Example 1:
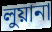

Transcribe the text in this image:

লুয়ানা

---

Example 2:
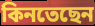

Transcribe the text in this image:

কিনতেছেন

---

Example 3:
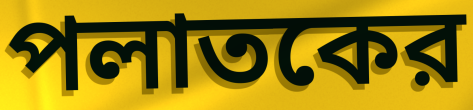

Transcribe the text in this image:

পলাতকের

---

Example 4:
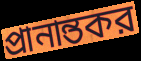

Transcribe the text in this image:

প্রানান্তকর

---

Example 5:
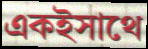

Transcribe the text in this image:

একইসাথে